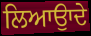
ਲਿਆਉਾਦੇ